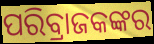
ପରିବ୍ରାଜକଙ୍କର